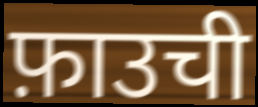
फ़ाउची